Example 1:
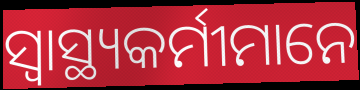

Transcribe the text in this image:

ସ୍ବାସ୍ଥ୍ୟକର୍ମୀମାନେ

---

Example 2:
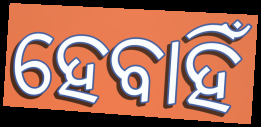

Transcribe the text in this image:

ହେବାହିଁ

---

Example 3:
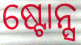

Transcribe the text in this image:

ଷ୍ଟୋନ୍ସ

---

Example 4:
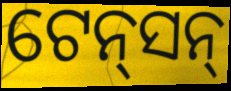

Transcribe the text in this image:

ଟେନ୍‌ସନ୍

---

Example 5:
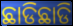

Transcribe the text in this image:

ଛାଡିଛାଡି